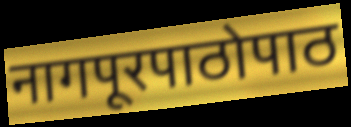
नागपूरपाठोपाठ